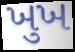
ખુખ